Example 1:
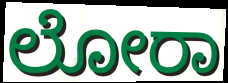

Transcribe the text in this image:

ಲೋರಾ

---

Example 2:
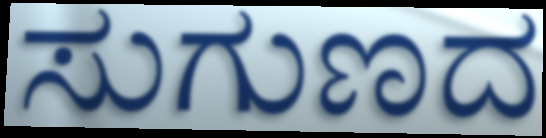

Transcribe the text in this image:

ಸುಗುಣದ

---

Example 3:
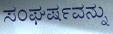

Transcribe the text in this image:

ಸಂಘರ್ಷವನ್ನು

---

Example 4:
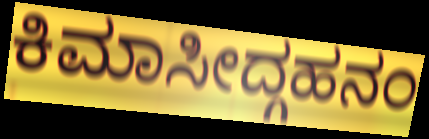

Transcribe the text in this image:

ಕಿಮಾಸೀದ್ಗಹನಂ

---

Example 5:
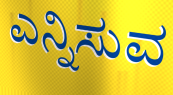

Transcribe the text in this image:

ಎನ್ನಿಸುವ